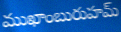
ముఖాంబురుహమ్